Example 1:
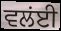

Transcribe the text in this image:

ਵਲਂਈ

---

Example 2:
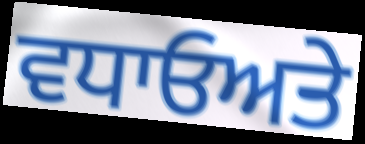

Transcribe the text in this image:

ਵਧਾਓਅਤੇ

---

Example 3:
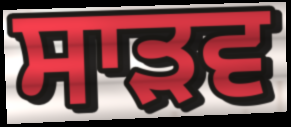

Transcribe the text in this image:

ਸਾੜਵ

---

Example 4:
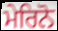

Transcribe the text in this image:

ਮੇਰਿਨੋ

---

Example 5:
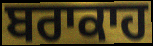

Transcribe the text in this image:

ਬਰਾਕਾਹ